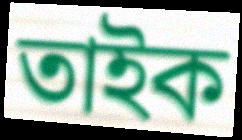
তাইক